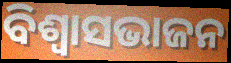
ବିଶ୍ୱାସଭାଜନ